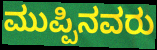
ಮುಪ್ಪಿನವರು